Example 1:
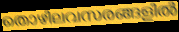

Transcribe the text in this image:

തൊഴിലവസരങ്ങളിൽ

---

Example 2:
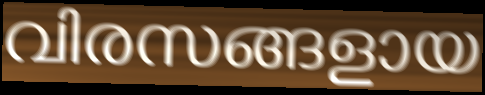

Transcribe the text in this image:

വിരസങ്ങളായ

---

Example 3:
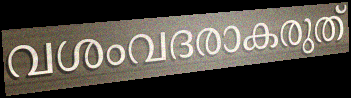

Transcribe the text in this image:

വശംവദരാകരുത്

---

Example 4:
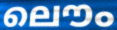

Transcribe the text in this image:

ലൌം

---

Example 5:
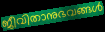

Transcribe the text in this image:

ജീവിതാനുഭവങ്ങൾ